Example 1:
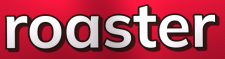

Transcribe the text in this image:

roaster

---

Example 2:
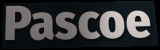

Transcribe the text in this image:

Pascoe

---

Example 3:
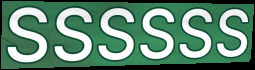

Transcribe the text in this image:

SSSSSS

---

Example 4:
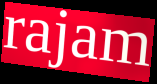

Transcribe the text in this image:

rajam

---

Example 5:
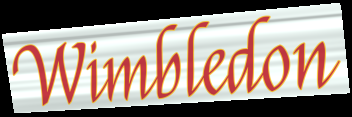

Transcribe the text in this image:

Wimbledon